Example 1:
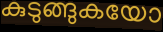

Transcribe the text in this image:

കുടുങ്ങുകയോ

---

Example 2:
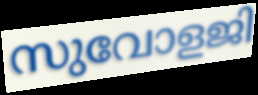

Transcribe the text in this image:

സുവോളജി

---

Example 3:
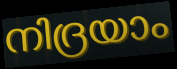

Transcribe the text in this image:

നിദ്രയാം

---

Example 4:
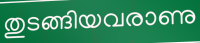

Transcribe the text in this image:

തുടങ്ങിയവരാണു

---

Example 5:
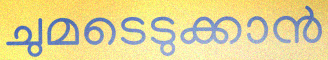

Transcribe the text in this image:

ചുമടെടുക്കാൻ